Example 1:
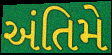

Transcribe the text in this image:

અંતિમે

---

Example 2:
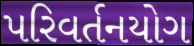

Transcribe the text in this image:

પરિવર્તનયોગ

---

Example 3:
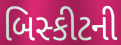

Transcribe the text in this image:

બિસ્કીટની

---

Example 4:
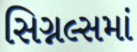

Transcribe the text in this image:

સિગ્નલ્સમાં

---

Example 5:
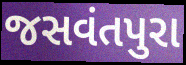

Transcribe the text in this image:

જસવંતપુરા